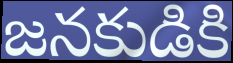
జనకుడికి